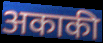
अकाकी